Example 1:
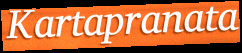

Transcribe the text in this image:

Kartapranata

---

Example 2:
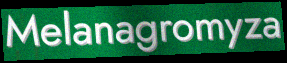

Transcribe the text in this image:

Melanagromyza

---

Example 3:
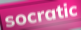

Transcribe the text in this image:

socratic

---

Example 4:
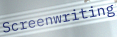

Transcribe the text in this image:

Screenwriting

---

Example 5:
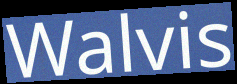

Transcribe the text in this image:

Walvis